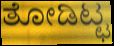
ತೋಡಿಟ್ಟ